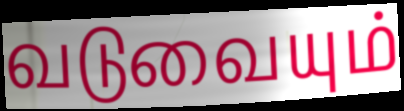
வடுவையும்